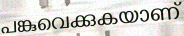
പങ്കുവെക്കുകയാണ്